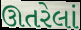
ઊતરેલાં